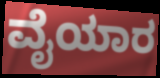
ವೈಯಾರ